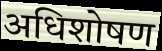
अधिशोषण